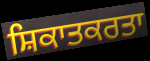
ਸ਼ਿਕਾਤਕਰਤਾ